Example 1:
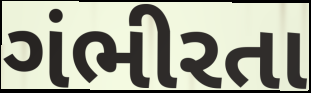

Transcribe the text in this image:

ગંભીરતા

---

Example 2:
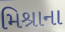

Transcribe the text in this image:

મિશ્રાના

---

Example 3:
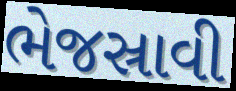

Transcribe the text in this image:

ભેજસ્રાવી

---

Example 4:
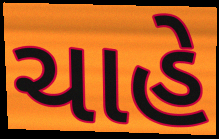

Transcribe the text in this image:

ચાહે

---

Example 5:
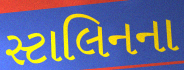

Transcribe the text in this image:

સ્ટાલિનના